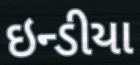
ઇન્ડીયા